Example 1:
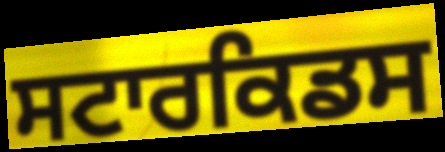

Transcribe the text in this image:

ਸਟਾਰਕਿਡਸ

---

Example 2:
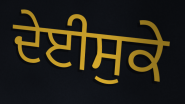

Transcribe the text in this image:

ਦੇਈਸੁਕੇ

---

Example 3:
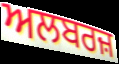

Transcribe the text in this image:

ਅਲਬਰਜ਼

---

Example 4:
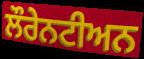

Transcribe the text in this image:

ਲੌਰੇਨਟੀਅਨ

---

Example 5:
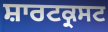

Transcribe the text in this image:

ਸ਼ਾਰਟਕ੍ਰਸਟ